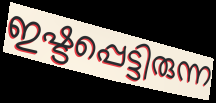
ഇഷ്ടപ്പെട്ടിരുന്ന